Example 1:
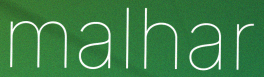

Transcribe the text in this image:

malhar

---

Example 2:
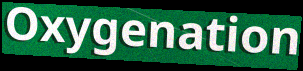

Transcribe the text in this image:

Oxygenation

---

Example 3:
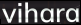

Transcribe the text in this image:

vihara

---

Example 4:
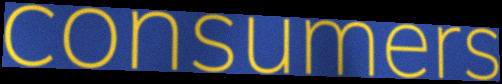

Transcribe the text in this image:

consumers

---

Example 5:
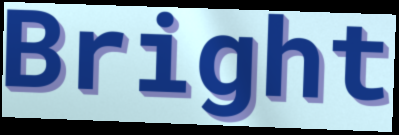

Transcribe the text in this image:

Bright